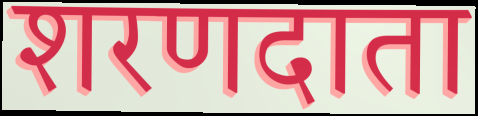
शरणदाता